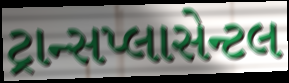
ટ્રાન્સપ્લાસેન્ટલ